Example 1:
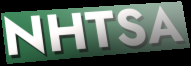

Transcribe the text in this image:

NHTSA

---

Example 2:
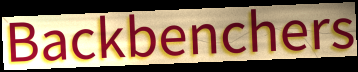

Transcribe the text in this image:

Backbenchers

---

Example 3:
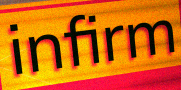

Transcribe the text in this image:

infirm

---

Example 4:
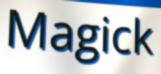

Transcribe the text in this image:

Magick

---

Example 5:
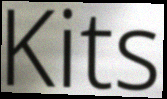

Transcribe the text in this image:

Kits